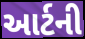
આર્ટની